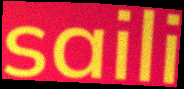
saili